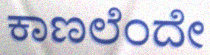
ಕಾಣಲೆಂದೇ